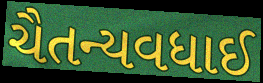
ચૈતન્યવધાઈ